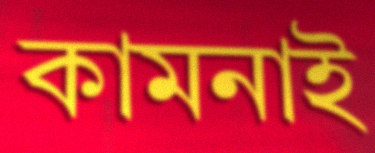
কামনাই